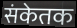
संकेतक